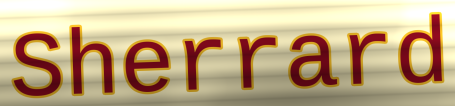
Sherrard